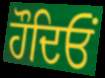
ਹੌਦਿਓਂ